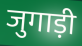
जुगाड़ी